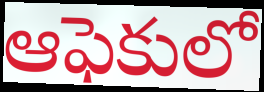
ఆఫెకులో